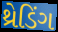
થ્રેડિંગ